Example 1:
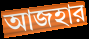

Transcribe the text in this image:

আজহার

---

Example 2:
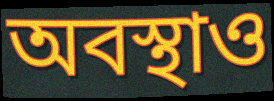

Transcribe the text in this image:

অবস্থাও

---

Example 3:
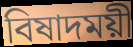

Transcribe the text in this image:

বিষাদময়ী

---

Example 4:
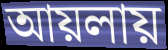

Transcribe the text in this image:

আয়লায়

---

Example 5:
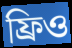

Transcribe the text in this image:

ফ্রিও